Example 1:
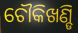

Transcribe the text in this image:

ଚୌକିଖଣ୍ଡି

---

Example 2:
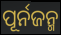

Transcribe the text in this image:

ପୂର୍ନଜନ୍ମ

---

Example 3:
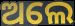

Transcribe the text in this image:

ଅଲେ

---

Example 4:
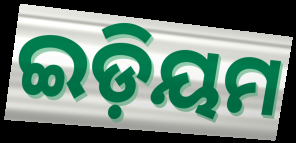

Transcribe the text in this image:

ଇଡ଼ିୟମ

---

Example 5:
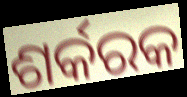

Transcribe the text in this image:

ଶର୍କରକ